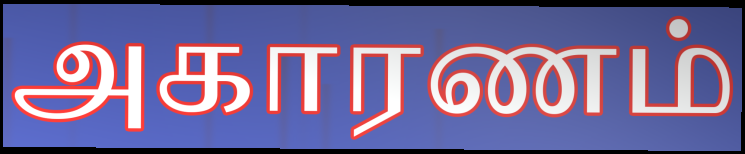
அகாரணம்